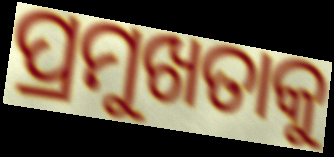
ପ୍ରମୁଖତାକୁ